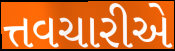
ત્તવચારીએ